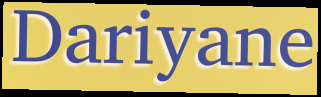
Dariyane